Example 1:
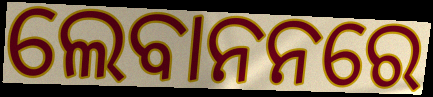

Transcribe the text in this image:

ଲେବାନନରେ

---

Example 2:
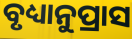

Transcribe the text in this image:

ବୃଧ୍ୟାନୁପ୍ରାସ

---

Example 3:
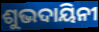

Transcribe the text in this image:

ଶୁଭଦାୟିନୀ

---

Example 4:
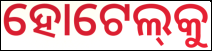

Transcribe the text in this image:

ହୋଟେଲ୍‌କୁ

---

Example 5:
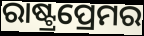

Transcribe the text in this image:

ରାଷ୍ଟ୍ରପ୍ରେମର